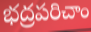
భద్రపరిచాం